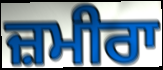
ਜ਼ਮੀਰਾ